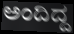
ಅಂದಿದ್ದ